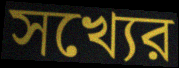
সখ্যের